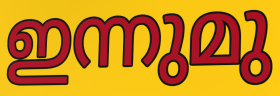
ഇന്നുമു